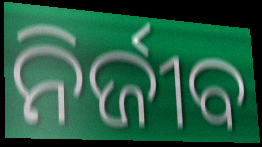
ନିର୍ଜୀବ